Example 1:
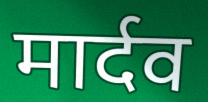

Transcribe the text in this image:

मार्दव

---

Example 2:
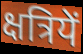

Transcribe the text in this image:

क्षत्रियें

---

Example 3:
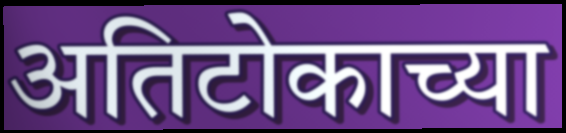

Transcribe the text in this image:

अतिटोकाच्या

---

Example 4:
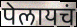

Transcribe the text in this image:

पेलायचं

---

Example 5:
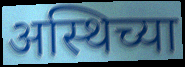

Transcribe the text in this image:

अस्थिच्या